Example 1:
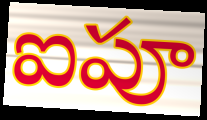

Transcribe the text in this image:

ఐపూ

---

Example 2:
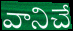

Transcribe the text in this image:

వానిచే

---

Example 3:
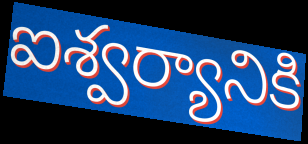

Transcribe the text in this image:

ఐశ్వర్యానికి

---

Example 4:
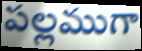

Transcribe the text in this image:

పల్లముగా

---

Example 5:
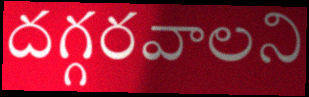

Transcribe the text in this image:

దగ్గరవాలని